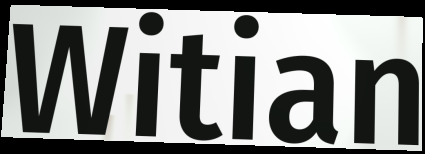
Witian